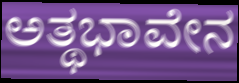
ಅತ್ಥಭಾವೇನ